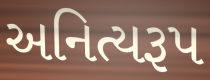
અનિત્યરૂપ